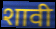
शावी